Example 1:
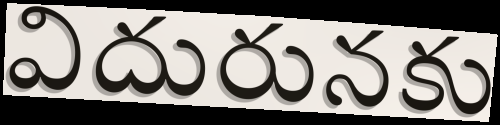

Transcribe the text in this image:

విదురునకు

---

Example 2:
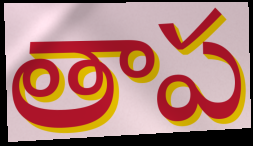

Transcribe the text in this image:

తాప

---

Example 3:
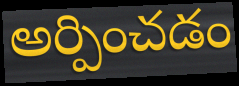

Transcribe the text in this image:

అర్పించడం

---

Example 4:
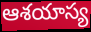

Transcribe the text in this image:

ఆశయాస్య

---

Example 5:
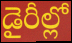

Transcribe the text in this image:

డైరీల్లో